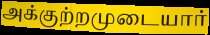
அக்குற்றமுடையார்